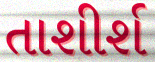
તાશીર્શ